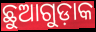
ଛୁଆଗୁଡ଼ାକ